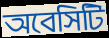
অবেসিটি